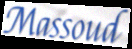
Massoud